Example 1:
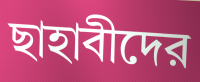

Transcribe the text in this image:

ছাহাবীদের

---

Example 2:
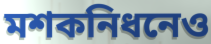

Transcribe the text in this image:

মশকনিধনেও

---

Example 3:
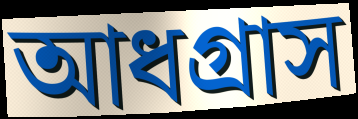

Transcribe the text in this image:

আধগ্রাস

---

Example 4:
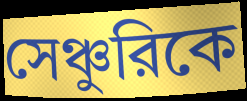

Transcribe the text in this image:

সেঞ্চুরিকে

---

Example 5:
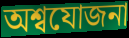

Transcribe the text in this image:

অশ্বযোজনা